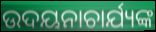
ଉଦୟନାଚାର୍ଯ୍ୟଙ୍କ